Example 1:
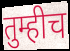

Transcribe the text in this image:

तुम्हीच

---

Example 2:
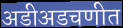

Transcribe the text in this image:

अडीअडचणीत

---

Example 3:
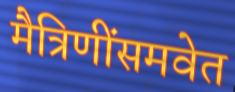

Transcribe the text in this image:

मैत्रिणींसमवेत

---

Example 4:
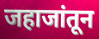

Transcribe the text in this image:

जहाजांतून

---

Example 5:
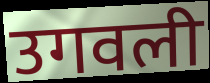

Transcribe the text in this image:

उगवली